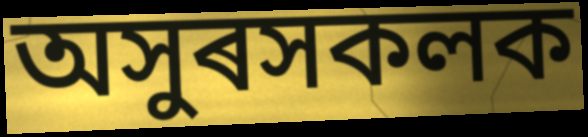
অসুৰসকলক